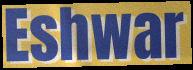
Eshwar